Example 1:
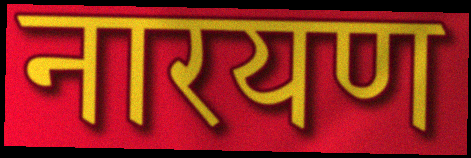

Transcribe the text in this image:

नारयण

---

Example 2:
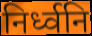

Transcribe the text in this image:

निर्ध्वनि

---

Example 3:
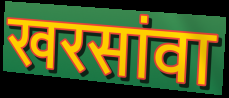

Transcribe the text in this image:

खरसांवा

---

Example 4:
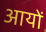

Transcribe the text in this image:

आयों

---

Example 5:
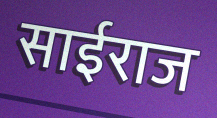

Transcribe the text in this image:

साईराज